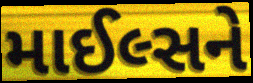
માઈલ્સને